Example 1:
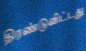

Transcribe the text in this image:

திரண்டுவிட்டது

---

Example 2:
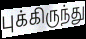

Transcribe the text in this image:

புக்கிருந்து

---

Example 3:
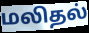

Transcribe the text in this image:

மலிதல்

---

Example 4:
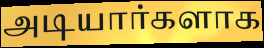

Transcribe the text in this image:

அடியார்களாக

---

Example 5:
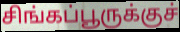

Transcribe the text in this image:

சிங்கப்பூருக்குச்